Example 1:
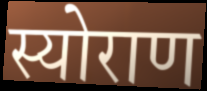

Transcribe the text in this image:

स्योराण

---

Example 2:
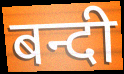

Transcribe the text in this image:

बन्दी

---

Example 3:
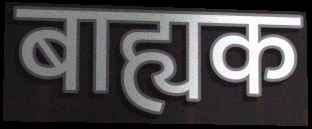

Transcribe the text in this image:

बाह्यक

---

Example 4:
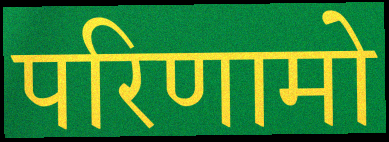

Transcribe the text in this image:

परिणामो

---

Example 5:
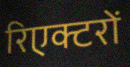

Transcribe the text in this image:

रिएक्टरों